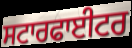
ਸਟਾਰਫਾਈਟਰ